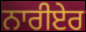
ਨਾਰੀਏਰ